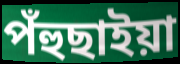
পঁহুছাইয়া